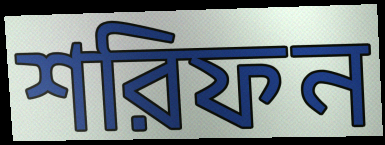
শরিফন